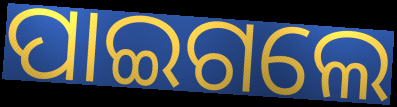
ପାଇଗଲେ